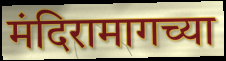
मंदिरामागच्या